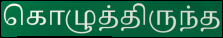
கொழுத்திருந்த